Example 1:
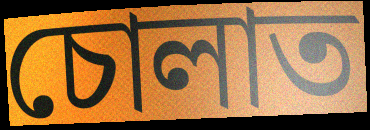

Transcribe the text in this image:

চোলাত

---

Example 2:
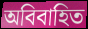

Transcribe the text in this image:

অবিবাহিত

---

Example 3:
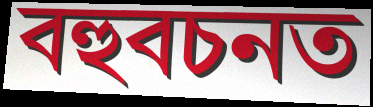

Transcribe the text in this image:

বহুবচনত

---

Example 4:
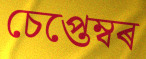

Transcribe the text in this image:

চেপ্তেম্বৰ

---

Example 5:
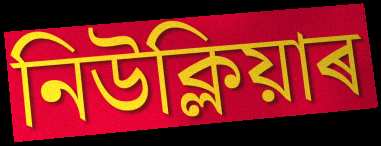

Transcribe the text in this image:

নিউক্লিয়াৰ